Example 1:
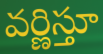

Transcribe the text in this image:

వర్ణిస్తూ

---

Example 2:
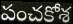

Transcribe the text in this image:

పంచకోశ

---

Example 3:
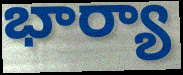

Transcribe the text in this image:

భార్యా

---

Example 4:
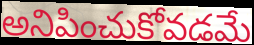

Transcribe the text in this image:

అనిపించుకోవడమే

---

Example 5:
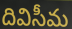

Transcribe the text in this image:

దివిసీమ